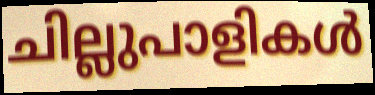
ചില്ലുപാളികൾ